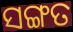
ସଙ୍ଗତ